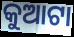
କୁଆଟା